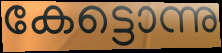
കേട്ടൊന്നു